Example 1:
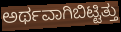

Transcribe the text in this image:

ಅರ್ಥವಾಗಿಬಿಟ್ಟಿತ್ತು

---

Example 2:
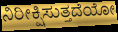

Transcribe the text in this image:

ನಿರೀಕ್ಷಿಸುತ್ತದೆಯೋ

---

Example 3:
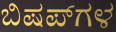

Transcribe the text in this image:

ಬಿಷಪ್‌ಗಳ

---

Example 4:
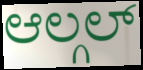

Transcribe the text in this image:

ಆಲ್ಗಲ್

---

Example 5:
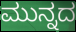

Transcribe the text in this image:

ಮುನ್ನದ